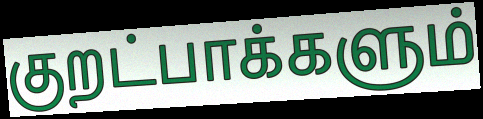
குறட்பாக்களும்